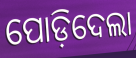
ପୋଡ଼ିଦେଲା